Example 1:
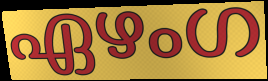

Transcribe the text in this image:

ഏഴംഗ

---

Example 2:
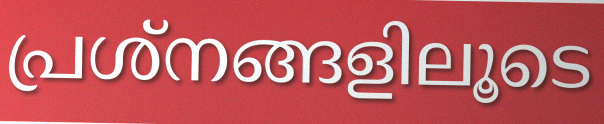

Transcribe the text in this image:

പ്രശ്നങ്ങളിലൂടെ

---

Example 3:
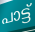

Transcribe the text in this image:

പാട്ട്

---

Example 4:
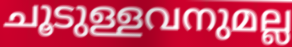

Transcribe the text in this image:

ചൂടുള്ളവനുമല്ല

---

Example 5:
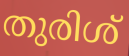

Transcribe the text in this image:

തുരിശ്